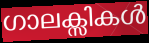
ഗാലക്സികൾ